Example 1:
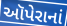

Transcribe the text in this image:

ઑપેરાનાં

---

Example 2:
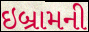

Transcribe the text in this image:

ઇબ્રામની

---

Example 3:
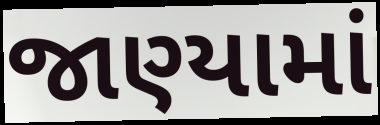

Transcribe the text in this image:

જાણ્યામાં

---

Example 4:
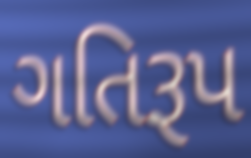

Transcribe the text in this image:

ગતિરૂપ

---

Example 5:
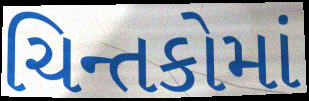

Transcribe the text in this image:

ચિન્તકોમાં